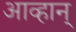
आव्हान्